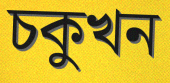
চকুখন